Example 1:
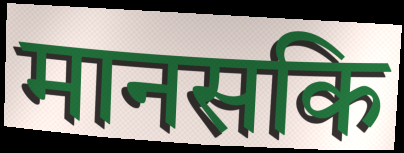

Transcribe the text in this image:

मानसकि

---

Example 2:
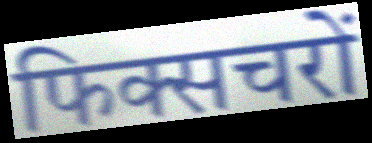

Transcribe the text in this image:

फिक्सचरों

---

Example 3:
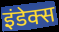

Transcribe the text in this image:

इंडेक्स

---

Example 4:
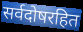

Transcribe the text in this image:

सर्वदोषरहित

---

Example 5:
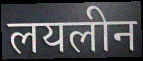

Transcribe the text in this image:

लयलीन